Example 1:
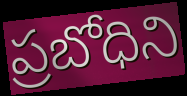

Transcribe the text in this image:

ప్రబోధిని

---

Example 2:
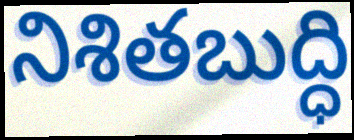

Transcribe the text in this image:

నిశితబుద్ధి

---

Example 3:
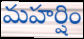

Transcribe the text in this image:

మహర్షిం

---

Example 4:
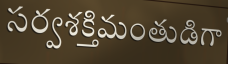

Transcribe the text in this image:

సర్వశక్తిమంతుడిగా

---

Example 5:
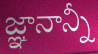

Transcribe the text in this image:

జ్ఞానాన్నీ